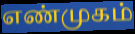
எண்முகம்